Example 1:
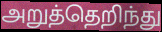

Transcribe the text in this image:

அறுத்தெறிந்து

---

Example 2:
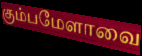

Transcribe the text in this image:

கும்பமேளாவை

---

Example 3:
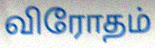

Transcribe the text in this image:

விரோதம்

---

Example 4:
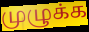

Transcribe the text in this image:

முழுக்க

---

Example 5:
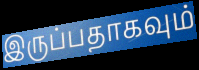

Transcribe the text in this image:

இருப்பதாகவும்